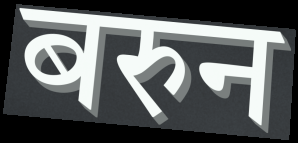
बरुन